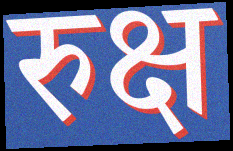
रुक्ष